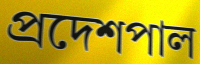
প্রদেশপাল